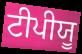
ਟੀਪੀਯੂ